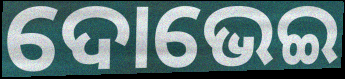
ଦୋଭେଇ